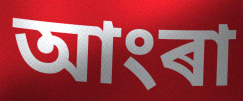
আংৰা